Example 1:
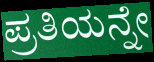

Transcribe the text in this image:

ಪ್ರತಿಯನ್ನೇ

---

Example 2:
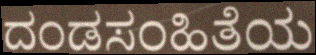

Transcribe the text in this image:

ದಂಡಸಂಹಿತೆಯ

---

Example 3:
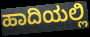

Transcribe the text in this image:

ಹಾದಿಯಲ್ಲಿ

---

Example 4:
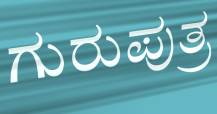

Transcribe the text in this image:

ಗುರುಪುತ್ರ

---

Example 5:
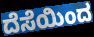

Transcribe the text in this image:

ದೆಸೆಯಿಂದ